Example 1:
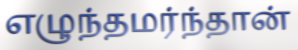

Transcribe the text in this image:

எழுந்தமர்ந்தான்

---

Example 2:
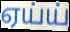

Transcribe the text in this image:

ஏய்ய்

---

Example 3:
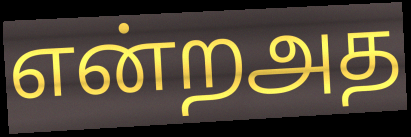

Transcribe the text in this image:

என்றஅத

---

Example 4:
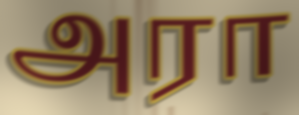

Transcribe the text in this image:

அரா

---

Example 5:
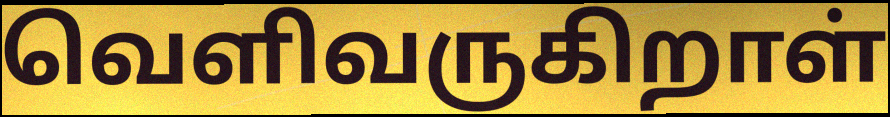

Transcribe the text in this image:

வெளிவருகிறாள்